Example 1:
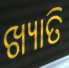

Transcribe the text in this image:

ଖ୍ଯାତି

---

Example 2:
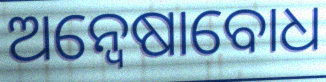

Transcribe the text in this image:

ଅନ୍ୱେଷାବୋଧ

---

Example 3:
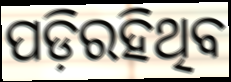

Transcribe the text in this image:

ପଡ଼ିରହିଥିବ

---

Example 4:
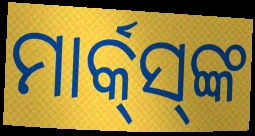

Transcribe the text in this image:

ମାର୍କ୍‌ସ୍‌ଙ୍କ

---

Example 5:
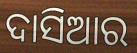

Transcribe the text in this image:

ଦାସିଆର